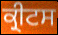
ਕ੍ਰੀਟਸ